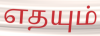
எதயும்